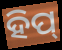
ହିପ୍